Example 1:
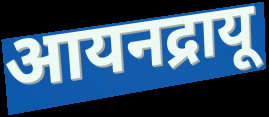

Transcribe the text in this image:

आयनद्रायू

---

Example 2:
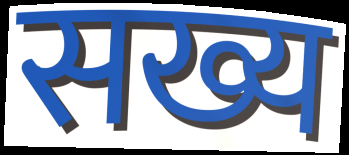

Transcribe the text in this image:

सख्य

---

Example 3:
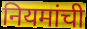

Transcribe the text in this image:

नियमांची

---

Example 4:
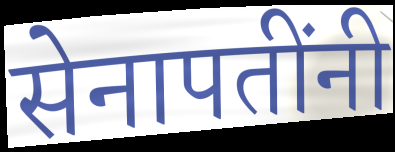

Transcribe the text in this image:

सेनापतींनी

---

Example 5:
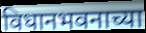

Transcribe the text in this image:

विधानभवनाच्या